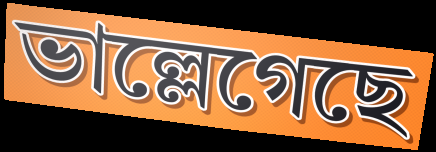
ভাল্লেগেছে